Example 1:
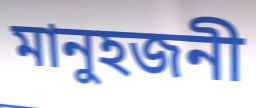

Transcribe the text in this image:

মানুহজনী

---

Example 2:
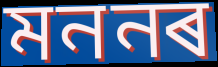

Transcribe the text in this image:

মননৰ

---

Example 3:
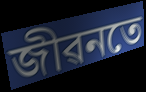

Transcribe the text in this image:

জীৱনতে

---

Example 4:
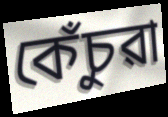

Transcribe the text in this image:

কেঁচুৱা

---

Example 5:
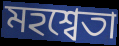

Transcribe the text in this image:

মহশ্বেতা